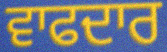
ਵਾਫਦਾਰ